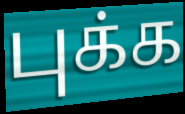
புக்க